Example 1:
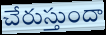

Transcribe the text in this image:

చేరుస్తుందా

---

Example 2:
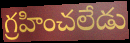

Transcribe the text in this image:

గ్రహించలేడు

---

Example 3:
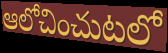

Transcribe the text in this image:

ఆలోచించుటలో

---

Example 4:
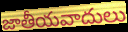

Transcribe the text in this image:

జాతీయవాదులు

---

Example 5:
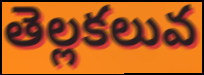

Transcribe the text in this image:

తెల్లకలువ